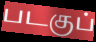
படகுப்